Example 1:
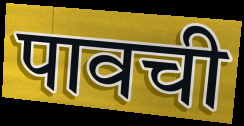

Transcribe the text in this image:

पावची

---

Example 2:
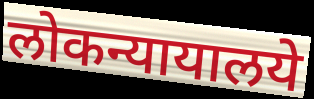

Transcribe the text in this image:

लोकन्यायालये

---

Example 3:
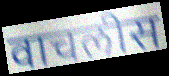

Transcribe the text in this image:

वाचलीस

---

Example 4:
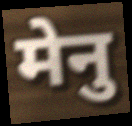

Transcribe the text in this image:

मेनु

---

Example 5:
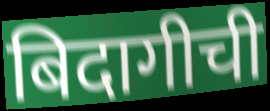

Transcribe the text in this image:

बिदागीची